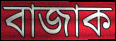
বাজাক